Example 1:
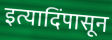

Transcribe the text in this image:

इत्यादिंपासून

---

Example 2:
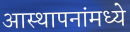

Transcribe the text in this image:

आस्थापनांमध्ये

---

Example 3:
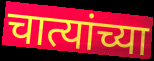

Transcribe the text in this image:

चात्यांच्या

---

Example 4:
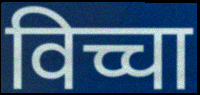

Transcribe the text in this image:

विच्चा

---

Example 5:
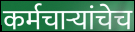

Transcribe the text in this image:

कर्मचाऱ्यांचेच